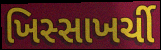
ખિસ્સાખર્ચી